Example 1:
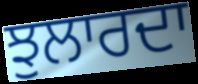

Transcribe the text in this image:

ਝੁਲਾਰਦਾ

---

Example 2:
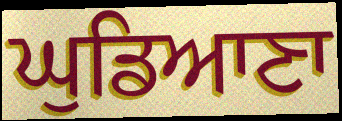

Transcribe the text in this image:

ਘੁਡਿਆਣਾ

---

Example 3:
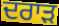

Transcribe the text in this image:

ਦਰਾੜ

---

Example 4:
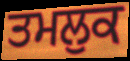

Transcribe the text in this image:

ਤਮਲੁਕ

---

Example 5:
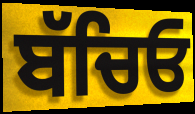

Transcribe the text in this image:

ਬੱਚਿਓ